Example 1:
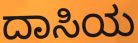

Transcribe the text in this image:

ದಾಸಿಯ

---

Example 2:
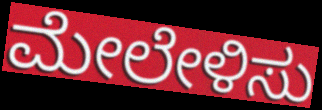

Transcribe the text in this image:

ಮೇಲೇಳಿಸು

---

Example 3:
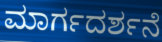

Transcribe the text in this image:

ಮಾರ್ಗದರ್ಶನೆ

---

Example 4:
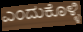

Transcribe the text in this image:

ಎಂದುಕೊಳ್ಳಿ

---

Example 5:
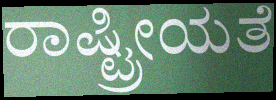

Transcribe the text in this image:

ರಾಷ್ಟ್ರೀಯತೆ